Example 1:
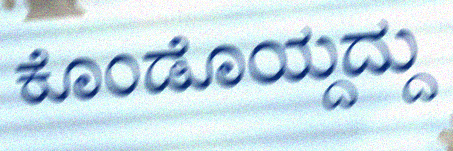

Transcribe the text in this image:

ಕೊಂಡೊಯ್ದದ್ದು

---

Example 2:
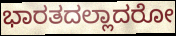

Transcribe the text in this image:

ಭಾರತದಲ್ಲಾದರೋ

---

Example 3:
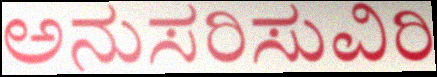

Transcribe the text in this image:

ಅನುಸರಿಸುವಿರಿ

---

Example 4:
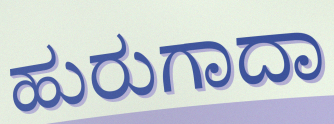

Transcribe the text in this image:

ಹುರುಗಾದಾ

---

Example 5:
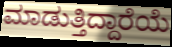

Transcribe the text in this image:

ಮಾಡುತ್ತಿದ್ದಾರೆಯೆ